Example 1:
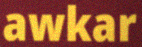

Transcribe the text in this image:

awkar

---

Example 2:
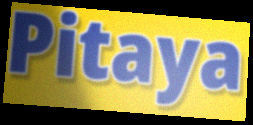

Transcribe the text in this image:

Pitaya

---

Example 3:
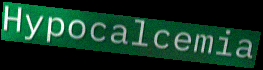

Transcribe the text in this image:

Hypocalcemia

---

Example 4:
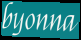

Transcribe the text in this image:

byonna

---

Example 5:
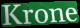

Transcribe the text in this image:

Krone